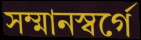
সম্মানস্বর্গে